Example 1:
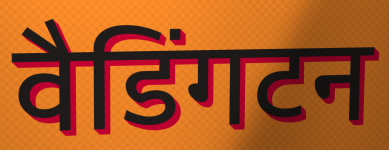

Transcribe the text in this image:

वैडिंगटन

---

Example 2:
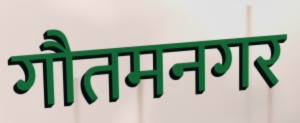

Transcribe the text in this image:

गौतमनगर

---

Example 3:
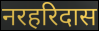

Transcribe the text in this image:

नरहरिदास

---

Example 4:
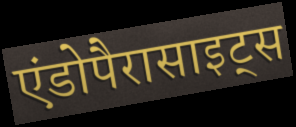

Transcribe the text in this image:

एंडोपैरासाइट्स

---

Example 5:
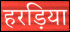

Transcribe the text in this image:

हरड़िया